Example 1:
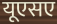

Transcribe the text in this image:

यूएसए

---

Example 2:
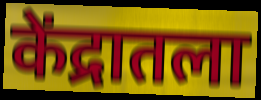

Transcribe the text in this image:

केंद्रातला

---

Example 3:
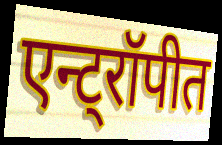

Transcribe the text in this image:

एन्ट्रॉपीत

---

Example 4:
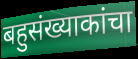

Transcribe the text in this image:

बहुसंख्याकांचा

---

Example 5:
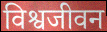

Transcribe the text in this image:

विश्वजीवन